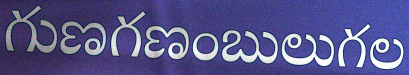
గుణగణంబులుగల